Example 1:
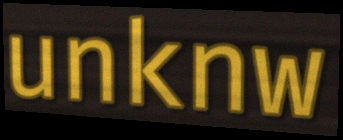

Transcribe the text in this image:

unknw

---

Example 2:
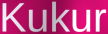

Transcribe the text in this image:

Kukur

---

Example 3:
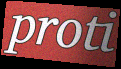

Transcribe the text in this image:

proti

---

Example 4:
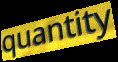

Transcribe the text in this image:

quantity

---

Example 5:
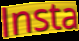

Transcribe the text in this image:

Insta